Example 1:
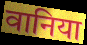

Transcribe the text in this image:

वानिया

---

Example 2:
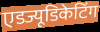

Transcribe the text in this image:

एडज्यूडिकेटिंग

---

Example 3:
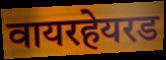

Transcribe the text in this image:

वायरहेयरड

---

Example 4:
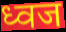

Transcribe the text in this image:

ध्वज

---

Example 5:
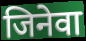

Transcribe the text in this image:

जिनेवा